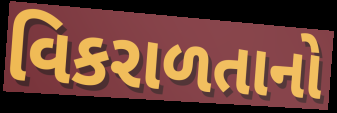
વિકરાળતાનો